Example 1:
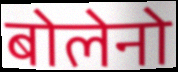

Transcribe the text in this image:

बोलेनो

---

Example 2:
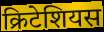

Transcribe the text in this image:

क्रिटेशियस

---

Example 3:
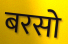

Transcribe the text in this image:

बरसो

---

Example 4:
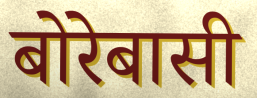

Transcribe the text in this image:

बोरेबासी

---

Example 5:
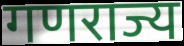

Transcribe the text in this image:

गणराज्य